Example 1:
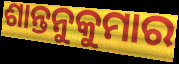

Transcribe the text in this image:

ଶାନ୍ତନୁକୁମାର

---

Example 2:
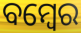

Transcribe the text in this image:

ବମ୍ବେର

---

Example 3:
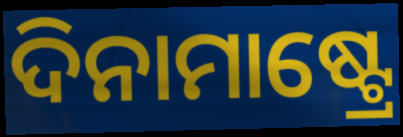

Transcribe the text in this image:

ଦିନାମାଷ୍ଟ୍ରେ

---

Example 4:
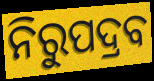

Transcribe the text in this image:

ନିରୁପଦ୍ରବ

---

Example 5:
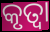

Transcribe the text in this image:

କୃତ୍ଵା